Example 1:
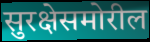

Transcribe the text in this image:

सुरक्षेसमोरील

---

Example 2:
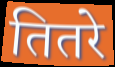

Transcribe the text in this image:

तितरे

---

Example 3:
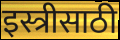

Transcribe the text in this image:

इस्त्रीसाठी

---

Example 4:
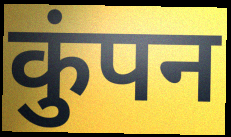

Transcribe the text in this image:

कुंपन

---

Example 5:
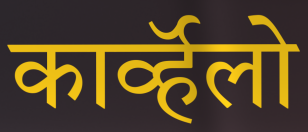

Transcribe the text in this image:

कार्व्हॅलो